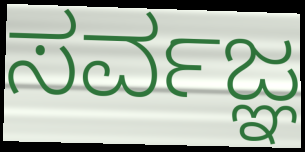
ಸರ್ವಜ್ಞ